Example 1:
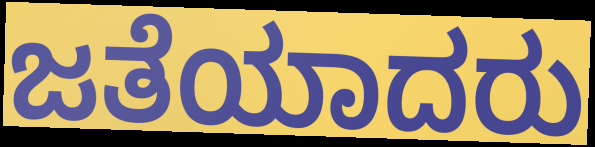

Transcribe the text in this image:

ಜತೆಯಾದರು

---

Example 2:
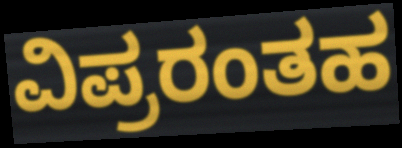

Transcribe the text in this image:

ವಿಪ್ರರಂತಹ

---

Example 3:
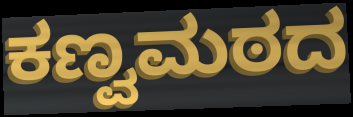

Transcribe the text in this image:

ಕಣ್ವಮಠದ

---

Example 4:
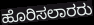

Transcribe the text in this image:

ಹೊರಿಸಲಾರರು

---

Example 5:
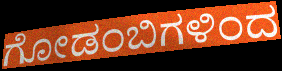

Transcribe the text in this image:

ಗೋಡಂಬಿಗಳಿಂದ